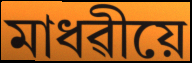
মাধৱীয়ে